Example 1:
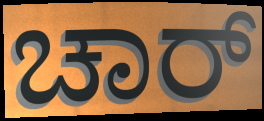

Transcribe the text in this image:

ಚಾರ್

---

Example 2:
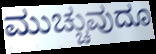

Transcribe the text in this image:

ಮುಚ್ಚುವುದೂ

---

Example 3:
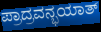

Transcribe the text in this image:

ಪ್ರಾದ್ರವನ್ಭಯಾತ್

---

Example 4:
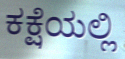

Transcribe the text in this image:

ಕಕ್ಷೆಯಲ್ಲಿ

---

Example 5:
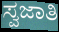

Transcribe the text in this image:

ಸ್ವಜಾತಿ